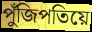
পুঁজিপতিয়ে